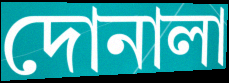
দোনালা